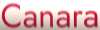
Canara